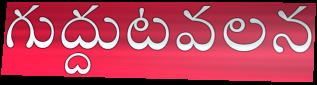
గుద్దుటవలన